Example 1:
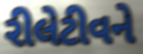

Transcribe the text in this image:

રીલેટીવને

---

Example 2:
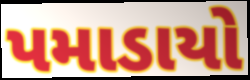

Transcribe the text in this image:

પમાડાયો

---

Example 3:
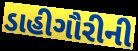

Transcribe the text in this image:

ડાહીગૌરીની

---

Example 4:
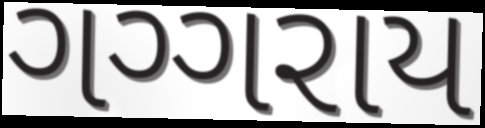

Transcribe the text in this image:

ગગ્ગરાય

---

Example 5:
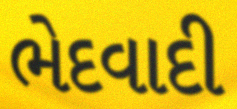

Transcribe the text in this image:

ભેદવાદી